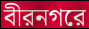
বীরনগরে